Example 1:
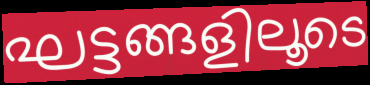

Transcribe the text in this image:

ഘട്ടങ്ങളിലൂടെ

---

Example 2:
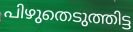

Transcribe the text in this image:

പിഴുതെടുത്തിട്ട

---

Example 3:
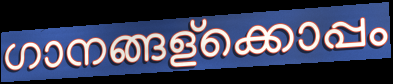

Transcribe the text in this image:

ഗാനങ്ങള്ക്കൊപ്പം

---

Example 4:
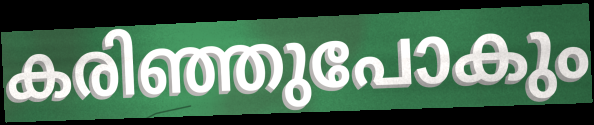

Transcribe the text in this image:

കരിഞ്ഞുപോകും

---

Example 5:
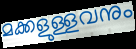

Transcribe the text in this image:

മക്കളുള്ളവനും